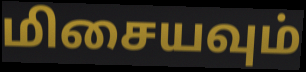
மிசையவும்